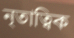
নৃতাত্বিক